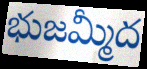
భుజమ్మీద